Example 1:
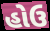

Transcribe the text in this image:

હોઉ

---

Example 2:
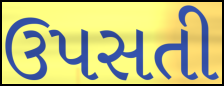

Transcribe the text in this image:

ઉપસતી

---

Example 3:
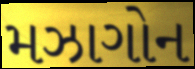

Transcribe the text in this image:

મઝાગોન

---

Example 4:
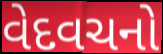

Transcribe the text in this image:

વેદવચનો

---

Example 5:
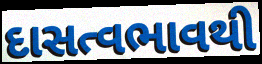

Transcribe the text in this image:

દાસત્વભાવથી